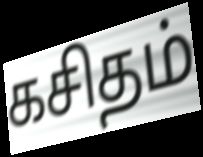
கசிதம்